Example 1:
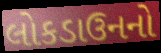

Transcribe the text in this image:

લોકડાઉનનો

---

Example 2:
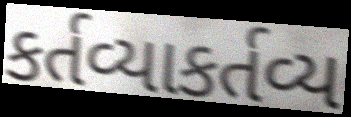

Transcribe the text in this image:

કર્તવ્યાકર્તવ્ય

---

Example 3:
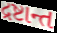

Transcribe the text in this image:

દ્રષ્ટાન્ત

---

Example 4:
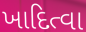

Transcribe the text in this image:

ખાદિત્વા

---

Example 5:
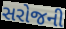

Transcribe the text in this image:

સરોજની